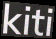
kiti